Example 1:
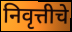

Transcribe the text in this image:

निवृत्तीचे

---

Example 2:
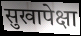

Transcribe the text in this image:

सुखापेक्षा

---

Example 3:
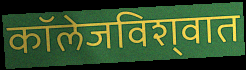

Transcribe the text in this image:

कॉलेजविश्वात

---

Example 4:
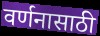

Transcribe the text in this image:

वर्णनासाठी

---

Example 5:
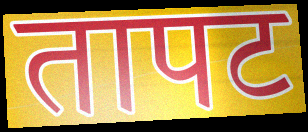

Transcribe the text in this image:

तापट